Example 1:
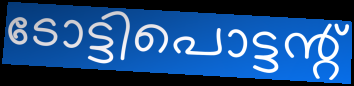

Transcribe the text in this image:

ടോട്ടിപൊട്ടന്റ്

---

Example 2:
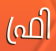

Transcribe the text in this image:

ഫ്രി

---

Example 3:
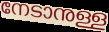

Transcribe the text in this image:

നേടാനുള്ള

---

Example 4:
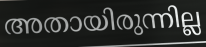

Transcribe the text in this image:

അതായിരുന്നില്ല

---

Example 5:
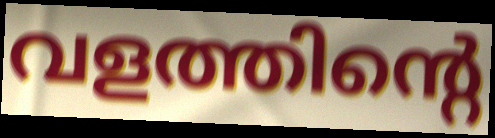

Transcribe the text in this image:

വളത്തിന്റെ